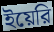
ইয়েরি